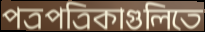
পত্রপত্রিকাগুলিতে